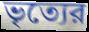
ভৃত্যের